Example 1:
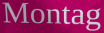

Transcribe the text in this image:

Montag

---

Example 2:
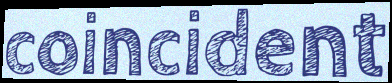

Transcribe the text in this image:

coincident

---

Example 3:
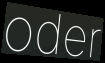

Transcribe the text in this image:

oder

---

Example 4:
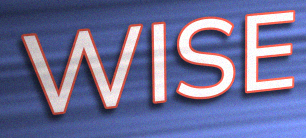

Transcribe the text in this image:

WISE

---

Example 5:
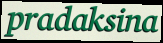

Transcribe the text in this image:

pradaksina